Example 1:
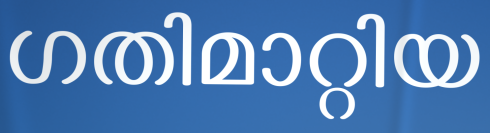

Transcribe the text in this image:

ഗതിമാറ്റിയ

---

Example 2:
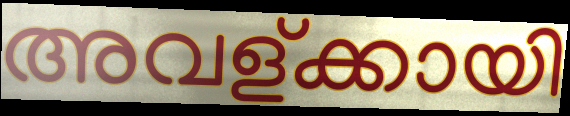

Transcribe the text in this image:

അവള്ക്കായി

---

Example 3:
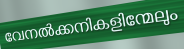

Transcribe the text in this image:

വേനൽക്കനികളിന്മേലും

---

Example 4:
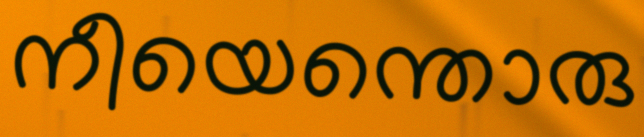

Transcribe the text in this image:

നീയെന്തൊരു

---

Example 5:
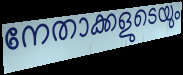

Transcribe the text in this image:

നേതാക്കളുടെയും